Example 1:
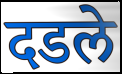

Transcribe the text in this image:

दडले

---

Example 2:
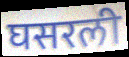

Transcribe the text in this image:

घसरली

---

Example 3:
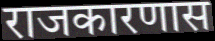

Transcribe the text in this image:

राजकारणास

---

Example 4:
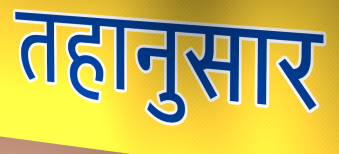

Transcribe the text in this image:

तहानुसार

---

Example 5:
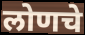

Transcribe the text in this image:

लोणचे